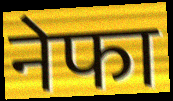
नेफा